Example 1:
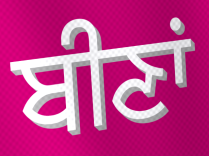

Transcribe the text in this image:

ਬੀਣਾਂ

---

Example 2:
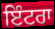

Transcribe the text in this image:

ਇੰਟਰਾ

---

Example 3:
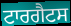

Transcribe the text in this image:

ਟਾਰਗੈਟਸ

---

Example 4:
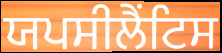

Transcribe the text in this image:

ਯਪਸੀਲੈਂਟਿਸ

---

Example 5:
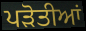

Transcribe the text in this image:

ਪੜੋਤੀਆਂ